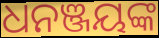
ଧନଞ୍ଜୟଙ୍କ